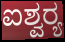
ಐಶ್ವರ‍್ಯ